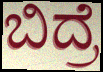
ಬಿದ್ರೆ